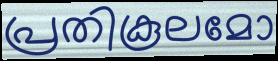
പ്രതികൂലമോ